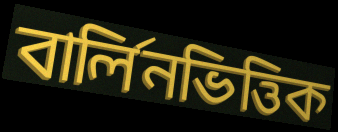
বার্লিনভিত্তিক